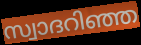
സ്വാദറിഞ്ഞ